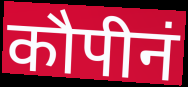
कौपीनं